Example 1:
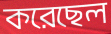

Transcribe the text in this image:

করেছেল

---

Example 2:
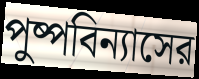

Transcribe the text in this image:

পুষ্পবিন্যাসের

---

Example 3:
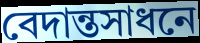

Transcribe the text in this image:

বেদান্তসাধনে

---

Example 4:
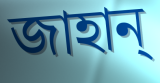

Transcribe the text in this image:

জাহান্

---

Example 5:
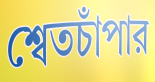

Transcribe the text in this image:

শ্বেতচাঁপার